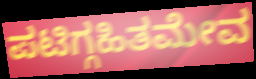
ಪಟಿಗ್ಗಹಿತಮೇವ